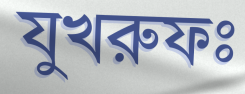
যুখরুফঃ